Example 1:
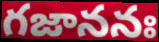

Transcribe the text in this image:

గజాననః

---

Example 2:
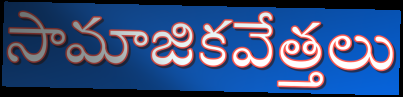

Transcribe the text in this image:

సామాజికవేత్తలు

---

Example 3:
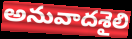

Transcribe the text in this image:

అనువాదశైలి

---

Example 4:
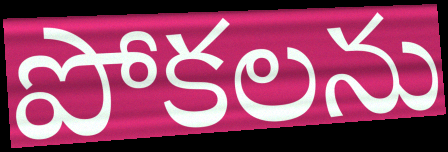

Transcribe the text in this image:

పోకలను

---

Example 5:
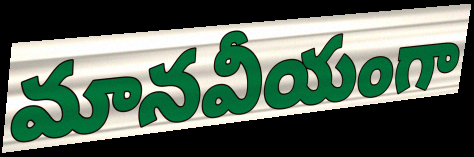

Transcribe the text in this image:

మానవీయంగా